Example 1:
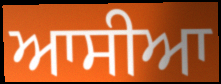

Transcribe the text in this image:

ਆਸੀਆ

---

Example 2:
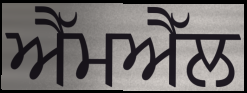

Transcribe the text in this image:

ਐੱਮਐੱਲ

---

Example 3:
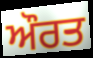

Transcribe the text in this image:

ਔਰਤ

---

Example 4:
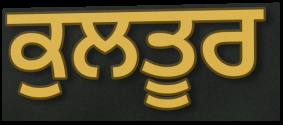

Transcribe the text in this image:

ਕੁਲਤੂਰ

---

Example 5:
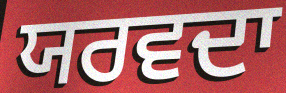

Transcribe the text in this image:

ਯਰਵਦਾ